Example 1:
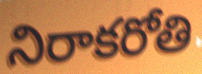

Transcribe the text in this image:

నిరాకరోతి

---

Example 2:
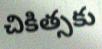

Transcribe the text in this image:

చికిత్సకు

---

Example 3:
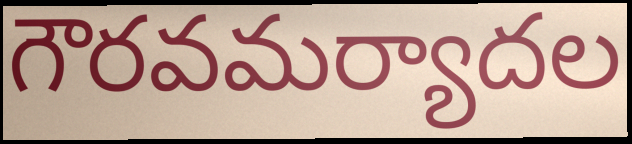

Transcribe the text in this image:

గౌరవమర్యాదల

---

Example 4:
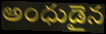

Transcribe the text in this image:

అంధుడైన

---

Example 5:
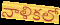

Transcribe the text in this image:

నాళికలో